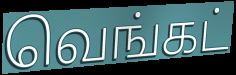
வெங்கட்